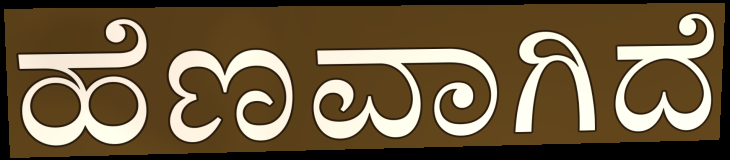
ಹೆಣವಾಗಿದೆ